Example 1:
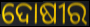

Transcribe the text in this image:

ଦୋଷୀର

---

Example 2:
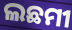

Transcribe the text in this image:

ଲଛମୀ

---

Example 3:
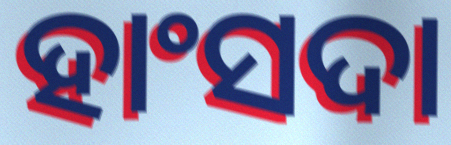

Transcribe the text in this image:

ହାଂସଦା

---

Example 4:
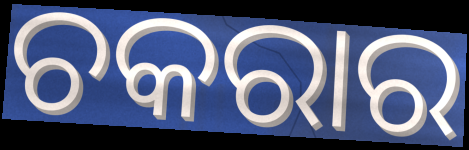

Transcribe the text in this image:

ଚକରାର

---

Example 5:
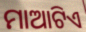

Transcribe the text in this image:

ମାଆଟିଏ